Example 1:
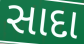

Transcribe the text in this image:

સાદા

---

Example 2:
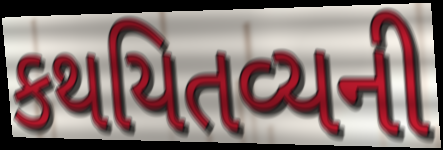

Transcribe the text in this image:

કથયિતવ્યની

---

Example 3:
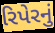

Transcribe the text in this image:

રિપેરનું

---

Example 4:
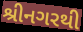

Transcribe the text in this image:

શ્રીનગરથી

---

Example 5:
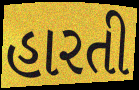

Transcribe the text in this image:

હારતી